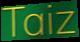
Taiz